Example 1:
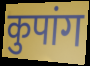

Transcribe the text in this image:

कुपांग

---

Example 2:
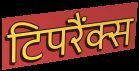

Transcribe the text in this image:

टिपरैंक्स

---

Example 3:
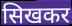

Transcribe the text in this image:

सिखकर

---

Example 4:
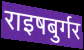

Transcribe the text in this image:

राइषबुर्गर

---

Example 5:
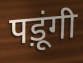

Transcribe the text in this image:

पड़ूंगी